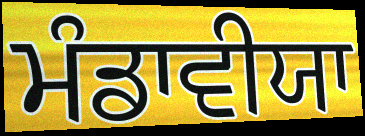
ਮੰਡਾਵੀਯਾ